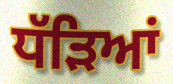
ਧੱੜਿਆਂ